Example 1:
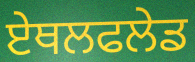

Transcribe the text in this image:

ਏਥਲਫਲੇਡ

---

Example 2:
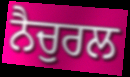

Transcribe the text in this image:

ਨੈਚੁਰਲ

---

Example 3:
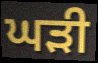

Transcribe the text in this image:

ਘਡ਼ੀ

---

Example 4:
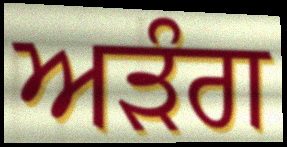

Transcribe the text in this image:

ਅੜੰਗ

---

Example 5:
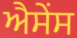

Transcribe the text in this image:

ਐਸੇਂਸ